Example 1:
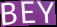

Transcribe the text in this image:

BEY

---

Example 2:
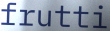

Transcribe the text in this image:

frutti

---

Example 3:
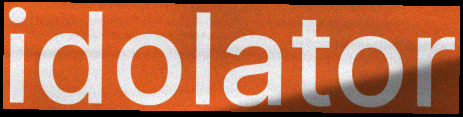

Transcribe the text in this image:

idolator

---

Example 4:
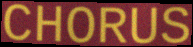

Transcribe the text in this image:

CHORUS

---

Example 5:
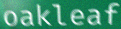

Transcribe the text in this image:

oakleaf